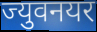
ज्युवनयर